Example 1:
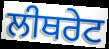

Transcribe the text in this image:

ਲੀਥਰੇਟ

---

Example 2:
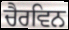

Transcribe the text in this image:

ਚੈਰਵਿਨ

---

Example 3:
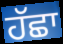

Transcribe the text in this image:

ਹੱਛਾ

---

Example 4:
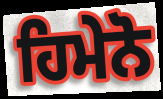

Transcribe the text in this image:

ਹਿਮੇਨੋ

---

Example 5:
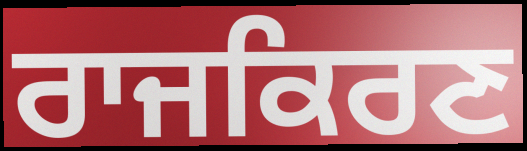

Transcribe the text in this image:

ਰਾਜਕਿਰਣ